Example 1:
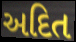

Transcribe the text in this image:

અદિત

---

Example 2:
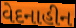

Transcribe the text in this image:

વેદનાહીન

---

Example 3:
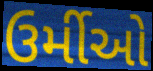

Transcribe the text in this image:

ઉર્મીઓ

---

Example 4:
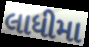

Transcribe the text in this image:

લાધીમા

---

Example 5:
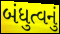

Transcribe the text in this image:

બંધુત્વનું